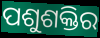
ପଶୁଶକ୍ତିର